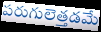
పరుగులెత్తడమే